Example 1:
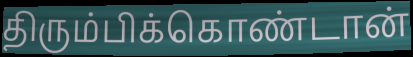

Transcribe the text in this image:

திரும்பிக்கொண்டான்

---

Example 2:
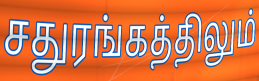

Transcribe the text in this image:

சதுரங்கத்திலும்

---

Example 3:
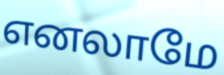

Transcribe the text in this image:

எனலாமே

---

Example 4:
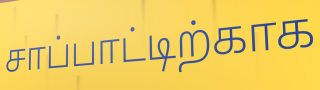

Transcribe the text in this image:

சாப்பாட்டிற்காக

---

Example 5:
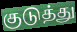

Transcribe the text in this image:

குடுத்து